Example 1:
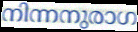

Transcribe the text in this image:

നിന്നനുരാഗ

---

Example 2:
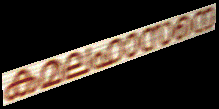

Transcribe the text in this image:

കമലഹാസനെ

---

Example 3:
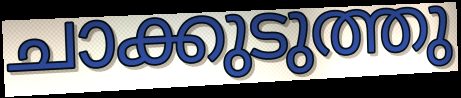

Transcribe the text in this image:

ചാക്കുടുത്തു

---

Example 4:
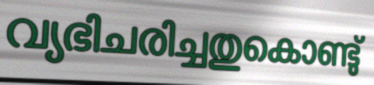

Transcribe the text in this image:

വ്യഭിചരിച്ചതുകൊണ്ടു്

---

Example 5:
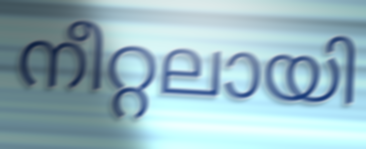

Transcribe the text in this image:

നീറ്റലായി